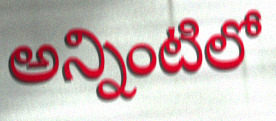
అన్నింటిలో